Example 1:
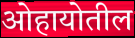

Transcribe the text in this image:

ओहायोतील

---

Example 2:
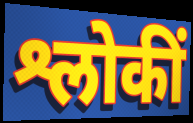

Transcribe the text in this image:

श्लोकीं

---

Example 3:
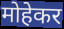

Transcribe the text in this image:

मोहेकर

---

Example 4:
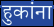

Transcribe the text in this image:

हुकांना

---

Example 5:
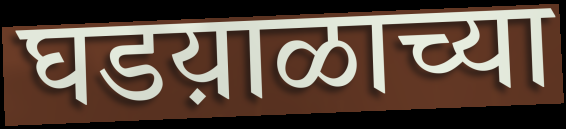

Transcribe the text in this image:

घडय़ाळाच्या